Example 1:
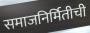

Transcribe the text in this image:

समाजनिर्मितीची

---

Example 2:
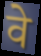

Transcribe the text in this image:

वे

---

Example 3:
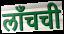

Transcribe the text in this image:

लाँचची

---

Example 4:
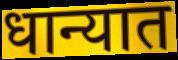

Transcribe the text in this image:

धान्यात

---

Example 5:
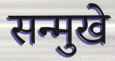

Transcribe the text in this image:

सन्मुखे